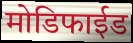
मोडिफाईड